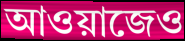
আওয়াজেও